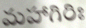
మహాగిరిః